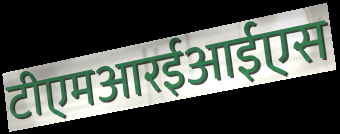
टीएमआरईआईएस